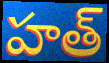
హత్